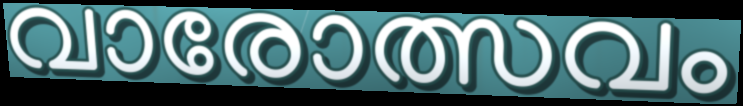
വാരോത്സവം